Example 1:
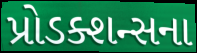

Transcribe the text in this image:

પ્રોડક્શન્સના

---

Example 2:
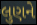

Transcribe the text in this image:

લુણને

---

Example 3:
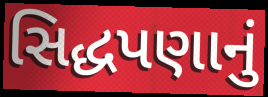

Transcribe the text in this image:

સિદ્ધપણાનું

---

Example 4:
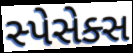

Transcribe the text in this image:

સ્પેસેક્સ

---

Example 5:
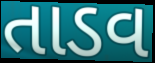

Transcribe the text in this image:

તાડવ